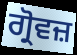
ਗ੍ਰੋਵਜ਼